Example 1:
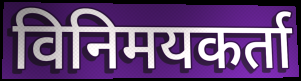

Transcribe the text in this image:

विनिमयकर्ता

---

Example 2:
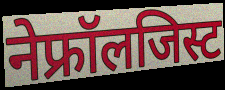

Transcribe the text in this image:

नेफ्रॉलजिस्ट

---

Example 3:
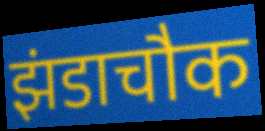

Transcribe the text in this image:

झंडाचौक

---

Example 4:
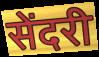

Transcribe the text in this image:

सेंदरी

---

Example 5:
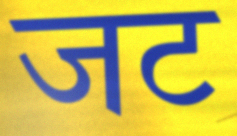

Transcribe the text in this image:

जट